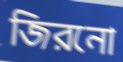
জিরনো